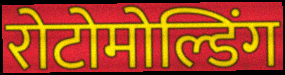
रोटोमोल्डिंग